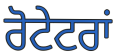
ਰੋਟੇਟਰਾਂ